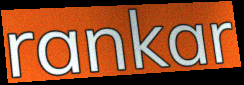
rankar